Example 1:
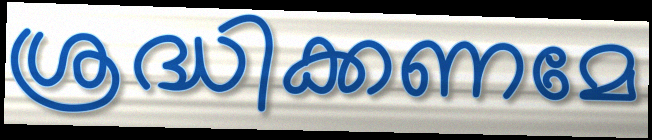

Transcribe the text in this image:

ശ്രദ്ധിക്കണമേ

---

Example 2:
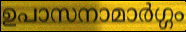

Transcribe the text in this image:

ഉപാസനാമാർഗ്ഗം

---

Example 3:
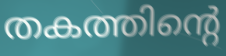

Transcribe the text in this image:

തകത്തിന്റെ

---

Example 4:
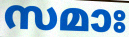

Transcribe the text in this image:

സമാഃ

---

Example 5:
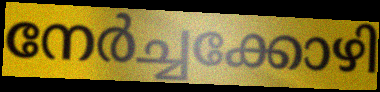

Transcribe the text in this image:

നേർച്ചക്കോഴി